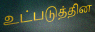
உட்படுத்தின